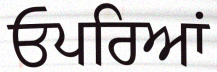
ਓਪਰਿਆਂ